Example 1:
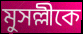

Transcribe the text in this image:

মুসল্লীকে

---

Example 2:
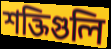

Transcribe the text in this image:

শক্তিগুলি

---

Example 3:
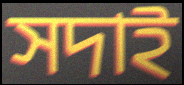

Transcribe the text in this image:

সদাই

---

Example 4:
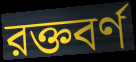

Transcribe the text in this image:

রক্তবর্ণ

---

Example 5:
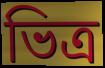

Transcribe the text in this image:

ভিত্র